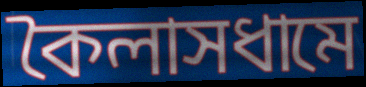
কৈলাসধামে